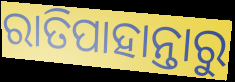
ରାତିପାହାନ୍ତାରୁ